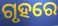
ଗୃହରେ